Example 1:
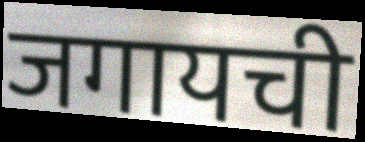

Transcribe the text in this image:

जगायची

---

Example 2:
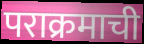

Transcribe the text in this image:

पराक्रमाची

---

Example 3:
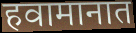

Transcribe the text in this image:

हवामानात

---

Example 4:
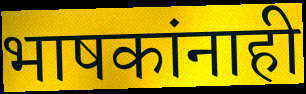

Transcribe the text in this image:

भाषकांनाही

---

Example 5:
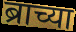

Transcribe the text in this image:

ब्राच्या